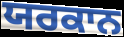
ਯਰਕਾਨ